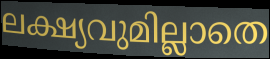
ലക്ഷ്യവുമില്ലാതെ